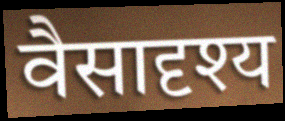
वैसादृश्य